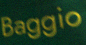
Baggio